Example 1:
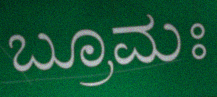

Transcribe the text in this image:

ಬ್ರೂಮಃ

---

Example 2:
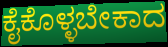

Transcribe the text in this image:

ಕೈಕೊಳ್ಳಬೇಕಾದ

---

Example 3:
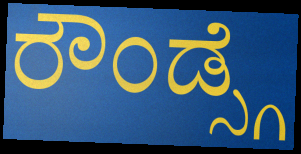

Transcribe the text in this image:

ರೌಂಡ್ಸ್ಗೆ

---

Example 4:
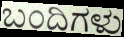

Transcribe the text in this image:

ಬಂದಿಗಳು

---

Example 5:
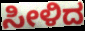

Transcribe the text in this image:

ಸೀಳಿದ